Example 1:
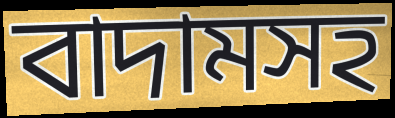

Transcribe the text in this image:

বাদামসহ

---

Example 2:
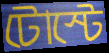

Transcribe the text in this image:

টোস্টে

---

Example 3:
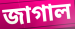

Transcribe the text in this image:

জাগাল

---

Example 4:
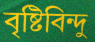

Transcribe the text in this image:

বৃষ্টিবিন্দু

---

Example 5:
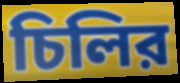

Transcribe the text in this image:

চিলির